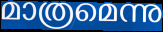
മാത്രമെന്നു